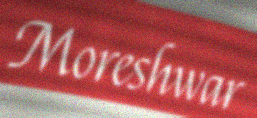
Moreshwar